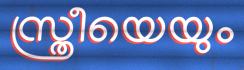
സ്ത്രീയെയും